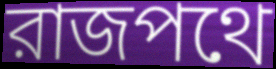
রাজপথে